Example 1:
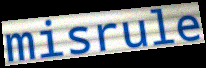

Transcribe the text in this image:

misrule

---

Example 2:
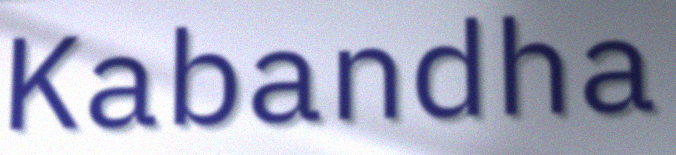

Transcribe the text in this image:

Kabandha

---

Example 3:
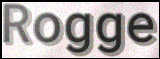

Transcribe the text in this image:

Rogge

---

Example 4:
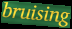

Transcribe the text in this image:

bruising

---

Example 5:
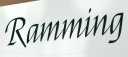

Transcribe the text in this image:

Ramming